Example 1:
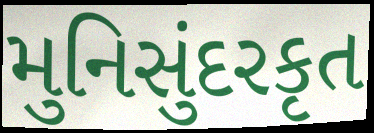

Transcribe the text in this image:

મુનિસુંદરકૃત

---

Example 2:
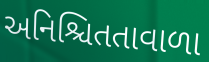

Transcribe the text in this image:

અનિશ્ચિતતાવાળા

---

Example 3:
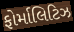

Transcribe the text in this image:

ફોર્માલિટિઝ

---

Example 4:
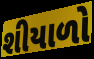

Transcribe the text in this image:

શીયાળો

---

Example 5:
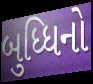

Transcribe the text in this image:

બુધ્ધિનો